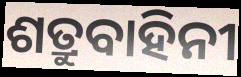
ଶତ୍ରୁବାହିନୀ